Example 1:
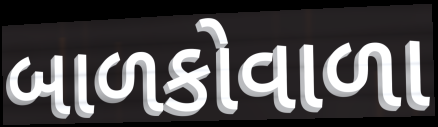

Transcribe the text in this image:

બાળકોવાળા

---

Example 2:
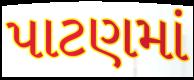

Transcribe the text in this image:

પાટણમાં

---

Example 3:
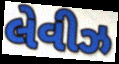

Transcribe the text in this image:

લેવીઝ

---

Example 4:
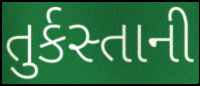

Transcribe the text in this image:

તુર્કસ્તાની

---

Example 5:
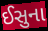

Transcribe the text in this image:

ઈસુના